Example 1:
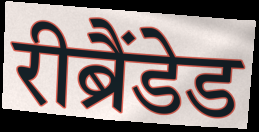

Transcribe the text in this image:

रीब्रैंडेड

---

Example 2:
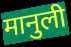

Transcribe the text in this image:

मानुली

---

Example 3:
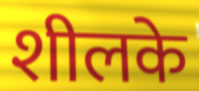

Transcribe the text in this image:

शीलके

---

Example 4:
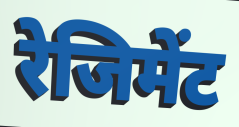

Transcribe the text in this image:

रेजिमेंट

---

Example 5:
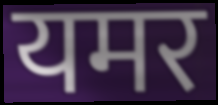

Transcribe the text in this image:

यमर